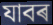
যাবৰ